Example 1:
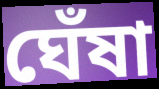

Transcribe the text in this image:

ঘেঁষা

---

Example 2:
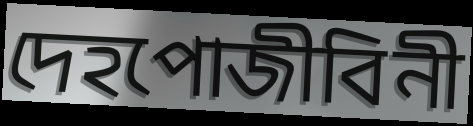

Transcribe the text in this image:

দেহপোজীবিনী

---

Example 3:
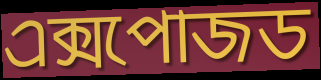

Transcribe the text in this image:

এক্সপোজড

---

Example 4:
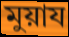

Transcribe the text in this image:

মুয়ায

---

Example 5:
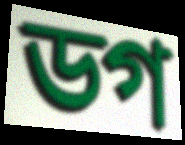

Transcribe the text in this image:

ডগ